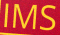
IMS